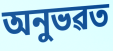
অনুভৱত